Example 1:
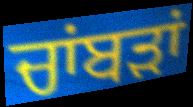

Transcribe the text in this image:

ਚਾਂਬੜਾਂ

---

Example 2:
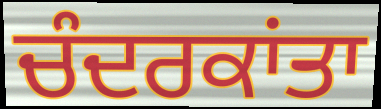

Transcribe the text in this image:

ਚੰਦਰਕਾਂਤਾ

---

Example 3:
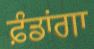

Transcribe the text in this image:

ਫ਼ੰਡਾਂਗਾ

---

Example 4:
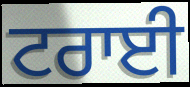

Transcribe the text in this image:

ਟਰਾਈ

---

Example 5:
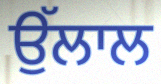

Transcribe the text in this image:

ਉੱਲਾਲ